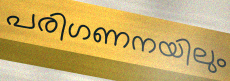
പരിഗണനയിലും